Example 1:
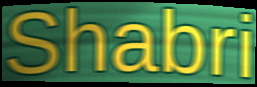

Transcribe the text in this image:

Shabri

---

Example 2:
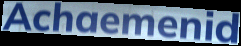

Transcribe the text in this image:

Achaemenid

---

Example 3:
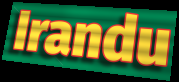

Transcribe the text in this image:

Irandu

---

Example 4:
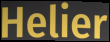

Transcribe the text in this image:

Helier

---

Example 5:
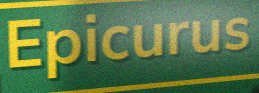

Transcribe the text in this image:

Epicurus